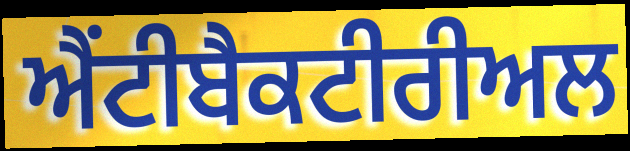
ਐਂਟੀਬੈਕਟੀਰੀਅਲ